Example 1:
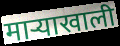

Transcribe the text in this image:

माऱ्याखाली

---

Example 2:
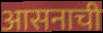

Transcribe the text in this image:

आसनाची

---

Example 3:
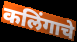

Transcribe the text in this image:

कलिंगाचे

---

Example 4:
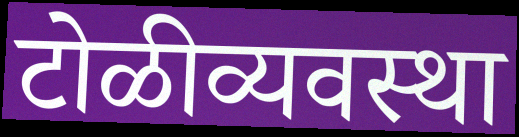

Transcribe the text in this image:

टोळीव्यवस्था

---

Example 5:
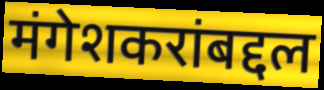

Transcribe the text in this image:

मंगेशकरांबद्दल